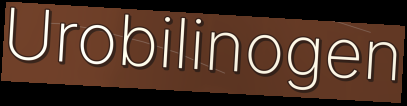
Urobilinogen